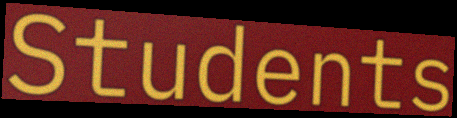
Students